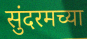
सुंदरमच्या